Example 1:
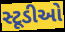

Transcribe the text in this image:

સ્ટૂડીઓ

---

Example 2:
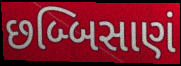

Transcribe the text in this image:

છબ્બિસાણં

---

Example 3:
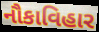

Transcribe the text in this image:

નૌકાવિહાર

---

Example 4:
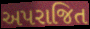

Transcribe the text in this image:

અપરાજિત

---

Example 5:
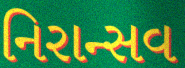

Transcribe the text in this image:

નિરાન્સવ